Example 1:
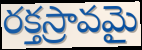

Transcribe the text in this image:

రక్తస్రావమై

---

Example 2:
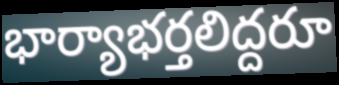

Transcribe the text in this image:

భార్యాభర్తలిద్దరూ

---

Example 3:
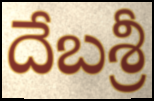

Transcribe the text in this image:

దేబశ్రీ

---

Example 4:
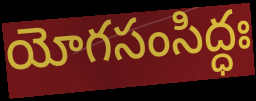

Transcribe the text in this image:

యోగసంసిద్ధః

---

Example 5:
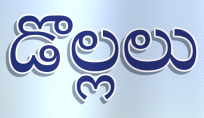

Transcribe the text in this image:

డొల్లలు